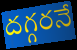
దగ్గరనే